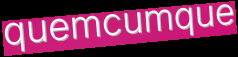
quemcumque